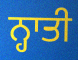
ਨ੍ਹਾਤੀ